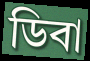
ডিবা